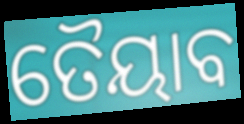
ତୈୟାବ